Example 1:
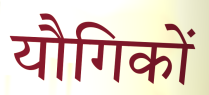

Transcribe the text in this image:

यौगिकों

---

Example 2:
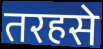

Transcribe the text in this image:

तरहसे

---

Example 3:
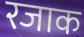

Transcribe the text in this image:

रजाक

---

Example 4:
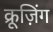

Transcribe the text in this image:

क्रूज़िंग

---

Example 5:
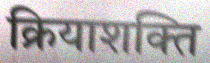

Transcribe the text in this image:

क्रियाशक्ति